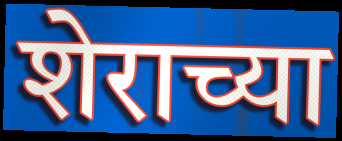
शेराच्या